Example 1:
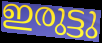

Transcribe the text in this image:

ഇരുട്ടു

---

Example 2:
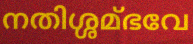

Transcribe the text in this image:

നതിശ്ശമ്ഭവേ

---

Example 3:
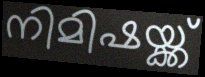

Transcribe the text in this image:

നിമിഷയ്ക്ക്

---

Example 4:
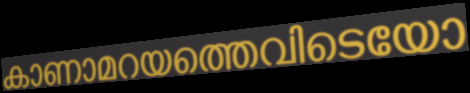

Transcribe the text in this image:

കാണാമറയത്തെവിടെയോ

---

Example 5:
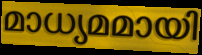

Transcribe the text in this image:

മാധ്യമമായി